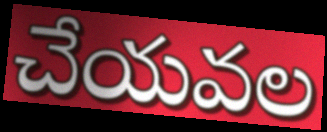
చేయవల